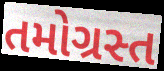
તમોગ્રસ્ત